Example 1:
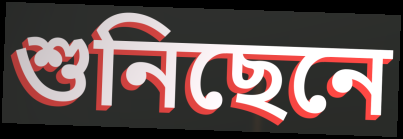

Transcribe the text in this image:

শুনিছেনে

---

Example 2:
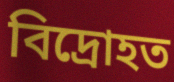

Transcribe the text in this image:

বিদ্ৰোহত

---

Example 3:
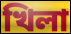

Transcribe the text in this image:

খিলা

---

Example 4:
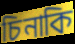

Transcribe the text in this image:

চিনাকি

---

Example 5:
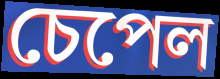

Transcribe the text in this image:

চেপেল